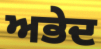
ਅਭੇਦ